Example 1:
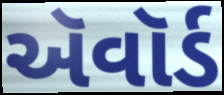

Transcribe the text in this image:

ઍવૉર્ડ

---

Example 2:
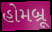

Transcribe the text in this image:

હોમબ્રૂ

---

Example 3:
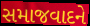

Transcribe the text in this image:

સમાજવાદને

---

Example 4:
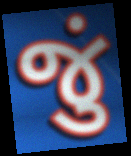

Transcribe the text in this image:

જું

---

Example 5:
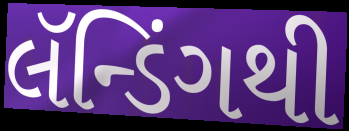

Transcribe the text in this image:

લૅન્ડિંગથી